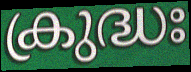
ക്രുദ്ധഃ